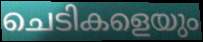
ചെടികളെയും